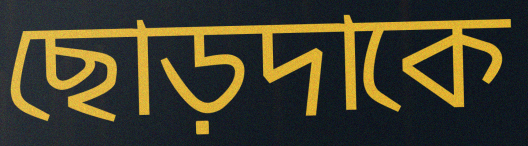
ছোড়দাকে